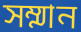
সম্মান